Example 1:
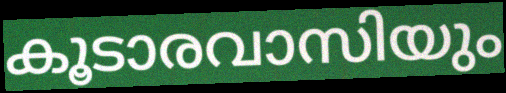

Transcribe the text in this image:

കൂടാരവാസിയും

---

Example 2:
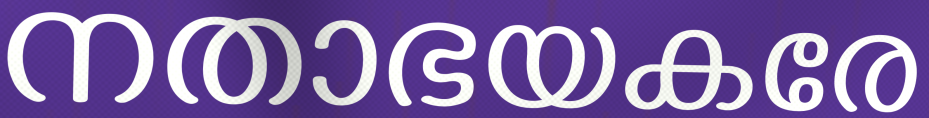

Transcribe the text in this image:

നതാഭയകരേ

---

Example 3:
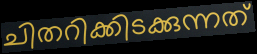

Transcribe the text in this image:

ചിതറിക്കിടക്കുന്നത്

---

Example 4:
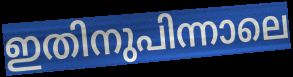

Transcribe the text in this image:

ഇതിനുപിന്നാലെ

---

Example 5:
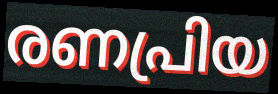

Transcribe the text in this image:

രണപ്രിയ